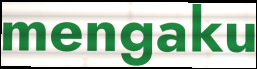
mengaku